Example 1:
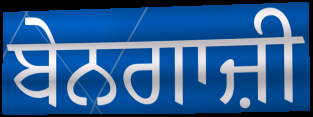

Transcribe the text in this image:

ਬੇਨਗਾਜ਼ੀ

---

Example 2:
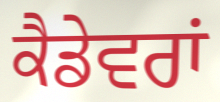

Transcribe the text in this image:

ਕੈਡੇਵਰਾਂ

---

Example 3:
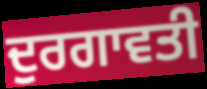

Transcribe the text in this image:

ਦੁਰਗਾਵਤੀ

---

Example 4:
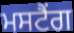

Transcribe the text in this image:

ਮਸਟੈਂਗ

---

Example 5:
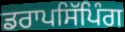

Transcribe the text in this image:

ਡਰਾਪਸਿੱਪਿੰਗ